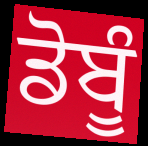
ਡੋਬੂੰ